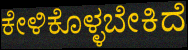
ಕೇಳಿಕೊಳ್ಳಬೇಕಿದೆ